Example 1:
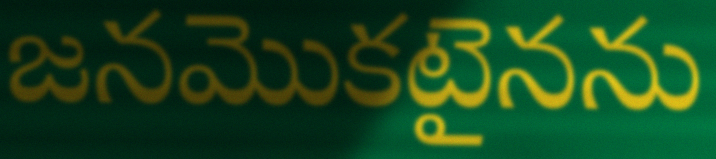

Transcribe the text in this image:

జనమొకటైనను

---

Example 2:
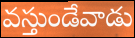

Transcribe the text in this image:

వస్తుండేవాడు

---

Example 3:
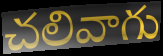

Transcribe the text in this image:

చలివాగు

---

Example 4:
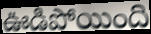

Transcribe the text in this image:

ఊడిపోయింది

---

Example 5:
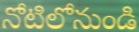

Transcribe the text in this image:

నోటిలోనుండి